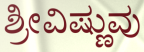
ಶ್ರೀವಿಷ್ಣುವು